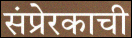
संप्रेरकाची